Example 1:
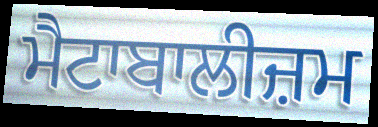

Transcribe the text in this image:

ਮੈਟਾਬਾਲੀਜ਼ਮ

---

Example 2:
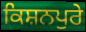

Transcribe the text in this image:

ਕਿਸ਼ਨਪੁਰੇ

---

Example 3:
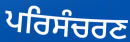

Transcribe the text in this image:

ਪਰਿਸੰਚਰਣ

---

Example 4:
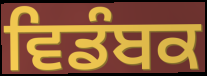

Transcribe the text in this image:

ਵਿਡੰਬਕ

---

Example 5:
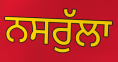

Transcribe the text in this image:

ਨਸਰੁੱਲਾ